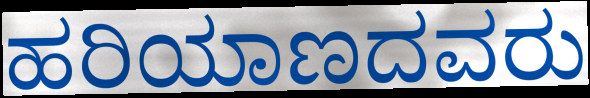
ಹರಿಯಾಣದವರು